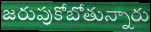
జరుపుకోబోతున్నారు